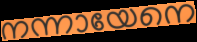
നന്നായേനെ